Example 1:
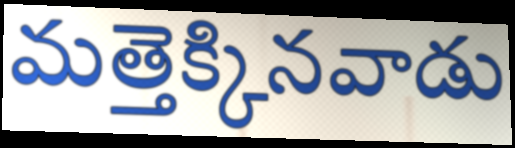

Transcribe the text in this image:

మత్తెక్కినవాడు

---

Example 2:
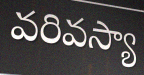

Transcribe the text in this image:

వరివస్యా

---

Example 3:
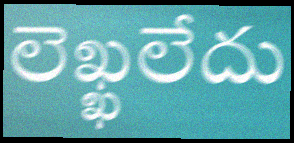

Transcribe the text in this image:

లెఖ్ఖలేదు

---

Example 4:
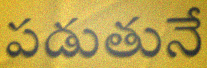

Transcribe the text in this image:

పడుతునే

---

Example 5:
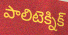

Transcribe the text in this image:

పాలిటెక్నిక్